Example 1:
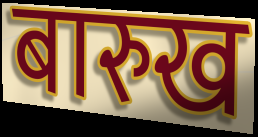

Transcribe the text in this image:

बारुख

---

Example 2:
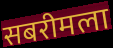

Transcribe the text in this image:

सबरीमला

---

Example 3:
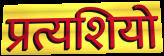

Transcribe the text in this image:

प्रत्यशियो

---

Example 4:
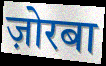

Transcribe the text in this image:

ज़ोरबा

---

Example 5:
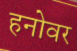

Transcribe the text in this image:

हनोवर